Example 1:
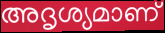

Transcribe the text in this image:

അദൃശ്യമാണ്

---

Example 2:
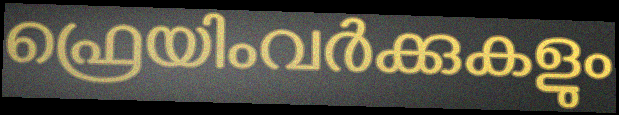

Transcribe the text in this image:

ഫ്രെയിംവർക്കുകളും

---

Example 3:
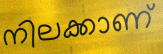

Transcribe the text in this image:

നിലക്കാണ്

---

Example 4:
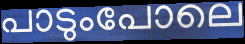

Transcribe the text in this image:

പാടുംപോലെ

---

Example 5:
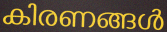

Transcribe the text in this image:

കിരണങ്ങൾ